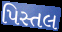
પિસ્તલ